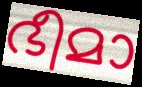
ഭീമാ